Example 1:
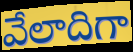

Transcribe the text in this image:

వేలాదిగా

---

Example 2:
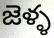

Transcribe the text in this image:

జెళ్ళ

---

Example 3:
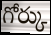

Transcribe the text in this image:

గోర్కు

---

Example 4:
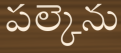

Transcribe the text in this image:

పల్కెను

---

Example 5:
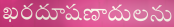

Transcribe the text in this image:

ఖరదూషణాదులను